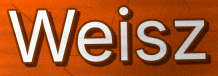
Weisz